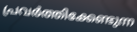
പ്രവർത്തിക്കേണ്ടുന്ന